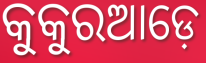
କୁକୁରଆଡ଼େ